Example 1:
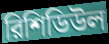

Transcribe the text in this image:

রিশিডিউল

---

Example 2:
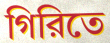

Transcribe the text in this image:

গিরিতে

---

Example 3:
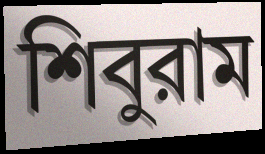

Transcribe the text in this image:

শিবুরাম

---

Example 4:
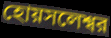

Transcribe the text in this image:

হোয়সলেশ্বর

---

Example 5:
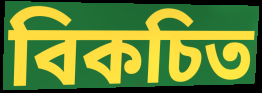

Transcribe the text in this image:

বিকচিত